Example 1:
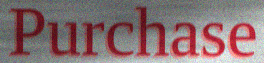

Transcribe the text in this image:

Purchase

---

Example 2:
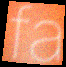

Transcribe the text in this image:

fa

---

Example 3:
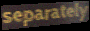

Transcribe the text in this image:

separately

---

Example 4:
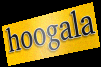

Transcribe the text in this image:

hoogala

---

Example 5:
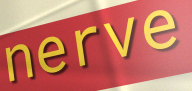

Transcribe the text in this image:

nerve